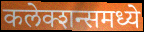
कलेक्शन्समध्ये